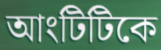
আংটিটিকে